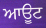
ਆਉੂਟ